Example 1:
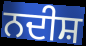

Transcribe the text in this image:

ਨਦੀਸ਼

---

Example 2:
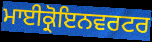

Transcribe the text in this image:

ਮਾਈਕ੍ਰੋਇਨਵਰਟਰ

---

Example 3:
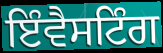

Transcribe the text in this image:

ਇੰਵੈਸਟਿੰਗ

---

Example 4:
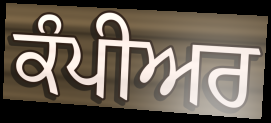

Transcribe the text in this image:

ਕੰਪੀਅਰ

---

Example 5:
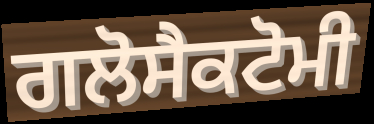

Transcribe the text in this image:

ਗਲੋਸੈਕਟੋਮੀ